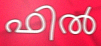
ഫിൽ